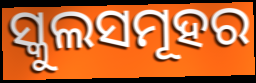
ସ୍କୁଲସମୂହର